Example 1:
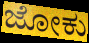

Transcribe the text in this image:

ಜೋಕು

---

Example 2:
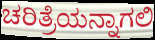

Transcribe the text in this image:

ಚರಿತ್ರೆಯನ್ನಾಗಲಿ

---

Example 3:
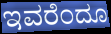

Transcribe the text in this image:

ಇವರೆಂದೂ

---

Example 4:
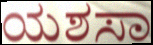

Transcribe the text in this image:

ಯಶಸಾ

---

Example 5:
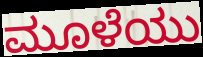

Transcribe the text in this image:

ಮೂಳೆಯು